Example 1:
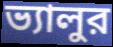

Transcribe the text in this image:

ভ্যালুর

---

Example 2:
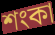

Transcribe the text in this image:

শংকা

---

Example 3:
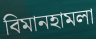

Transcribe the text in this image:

বিমানহামলা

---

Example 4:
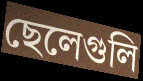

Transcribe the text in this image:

ছেলেগুলি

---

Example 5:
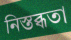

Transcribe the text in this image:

নিস্তব্ধতা